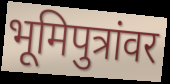
भूमिपुत्रांवर